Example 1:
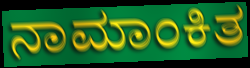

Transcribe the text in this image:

ನಾಮಾಂಕಿತ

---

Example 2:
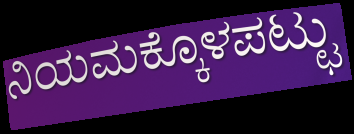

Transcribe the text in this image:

ನಿಯಮಕ್ಕೊಳಪಟ್ಟು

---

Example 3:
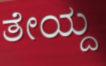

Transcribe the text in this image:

ತೇಯ್ದ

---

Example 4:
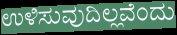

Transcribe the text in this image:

ಉಳಿಸುವುದಿಲ್ಲವೆಂದು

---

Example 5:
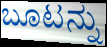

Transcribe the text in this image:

ಬೂಟನ್ನು